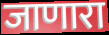
जाणारा